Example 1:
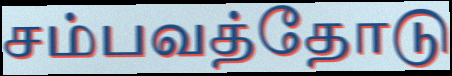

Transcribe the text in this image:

சம்பவத்தோடு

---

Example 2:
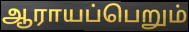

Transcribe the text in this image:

ஆராயப்பெறும்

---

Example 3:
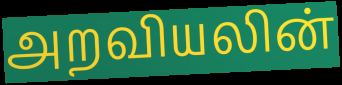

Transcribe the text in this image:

அறவியலின்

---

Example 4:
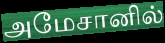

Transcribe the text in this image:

அமேசானில்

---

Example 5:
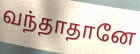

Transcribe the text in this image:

வந்தாதானே